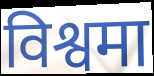
विश्वमा